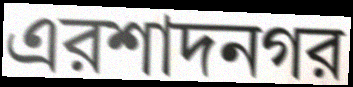
এরশাদনগর